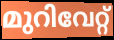
മുറിവേറ്റ്